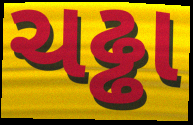
ચઢ્ઢા